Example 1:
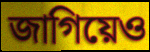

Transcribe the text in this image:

জাগিয়েও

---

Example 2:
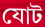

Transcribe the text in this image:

যোট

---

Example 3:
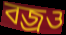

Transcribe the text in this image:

বজ্রও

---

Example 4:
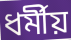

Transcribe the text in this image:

ধর্মীয়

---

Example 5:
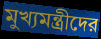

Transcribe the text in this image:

মুখ্যমন্ত্রীদের